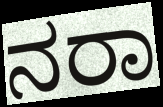
ನರಾ